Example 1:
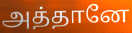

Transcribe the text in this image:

அத்தானே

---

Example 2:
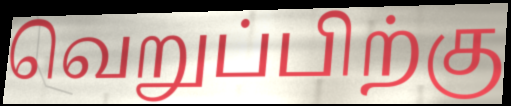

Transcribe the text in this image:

வெறுப்பிற்கு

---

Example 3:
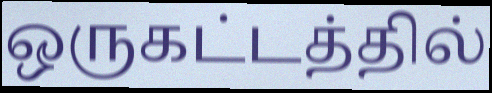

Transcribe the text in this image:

ஒருகட்டத்தில்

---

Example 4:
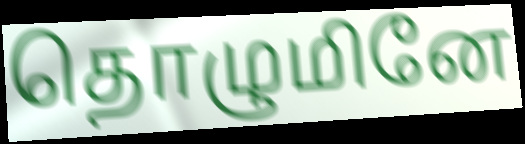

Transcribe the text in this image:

தொழுமினே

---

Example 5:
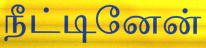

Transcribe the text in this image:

நீட்டினேன்